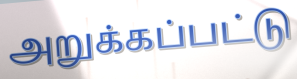
அறுக்கப்பட்டு